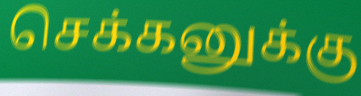
செக்கனுக்கு